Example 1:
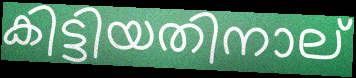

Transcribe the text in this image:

കിട്ടിയതിനാല്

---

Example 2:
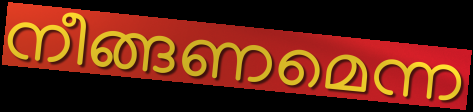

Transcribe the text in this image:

നീങ്ങണമെന്ന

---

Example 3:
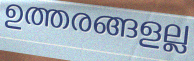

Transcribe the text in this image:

ഉത്തരങ്ങളല്ല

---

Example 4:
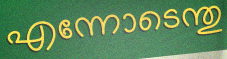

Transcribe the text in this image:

എന്നോടെന്തു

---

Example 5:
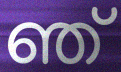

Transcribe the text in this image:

ഞ്